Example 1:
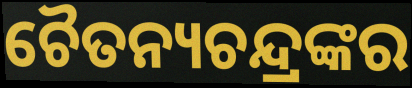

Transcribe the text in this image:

ଚୈତନ୍ୟଚନ୍ଦ୍ରଙ୍କର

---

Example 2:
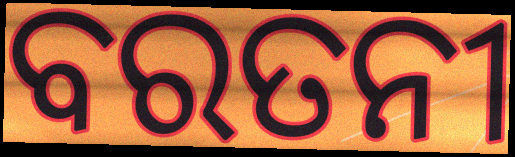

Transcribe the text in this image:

ବରତନୀ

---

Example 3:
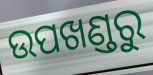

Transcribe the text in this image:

ଉପଖଣ୍ଡରୁ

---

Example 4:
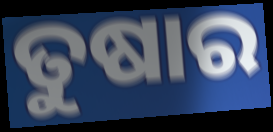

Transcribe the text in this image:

ତୁଷାର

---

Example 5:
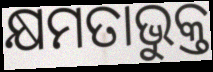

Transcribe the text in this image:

କ୍ଷମତାଭୁକ୍ତ